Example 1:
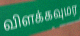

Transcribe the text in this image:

விளக்கவுமர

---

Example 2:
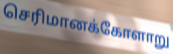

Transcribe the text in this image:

செரிமானக்கோளாறு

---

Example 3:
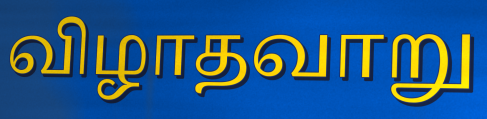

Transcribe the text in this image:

விழாதவாறு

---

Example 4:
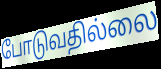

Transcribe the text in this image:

போடுவதில்லை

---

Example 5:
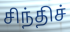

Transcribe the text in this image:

சிந்திச்